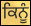
ਕਿਨੂੰ